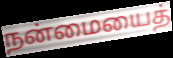
நன்மையைத்